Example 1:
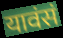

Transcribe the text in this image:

यावंसं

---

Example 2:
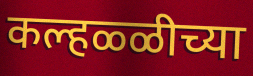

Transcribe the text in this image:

कल्हळ्ळीच्या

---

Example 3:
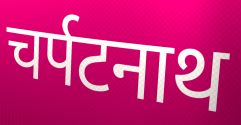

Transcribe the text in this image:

चर्पटनाथ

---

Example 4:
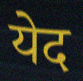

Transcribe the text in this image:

येद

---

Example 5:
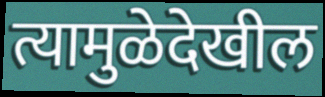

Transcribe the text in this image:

त्यामुळेदेखील